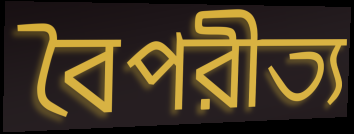
বৈপরীত্য